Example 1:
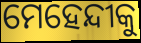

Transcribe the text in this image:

ମେହେନ୍ଦୀକୁ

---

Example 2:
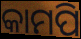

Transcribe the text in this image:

କାମପି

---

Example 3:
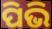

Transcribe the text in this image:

ପିଭି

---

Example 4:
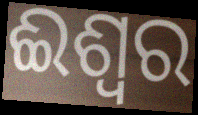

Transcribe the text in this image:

ଈଶ୍ୱର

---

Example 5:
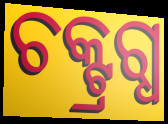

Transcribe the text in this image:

ଚକ୍ଟ୍ରଗ୍ଧ